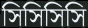
সিসিসিসি